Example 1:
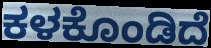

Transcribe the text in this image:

ಕಳಕೊಂಡಿದೆ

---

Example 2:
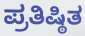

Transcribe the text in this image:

ಪ್ರತಿಷ್ಠಿತ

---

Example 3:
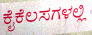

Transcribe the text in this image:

ಕೈಕೆಲಸಗಳಲ್ಲಿ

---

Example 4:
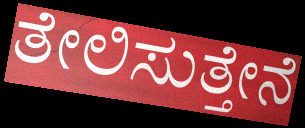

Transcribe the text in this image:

ತೇಲಿಸುತ್ತೇನೆ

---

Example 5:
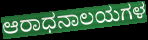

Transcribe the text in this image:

ಆರಾಧನಾಲಯಗಳ